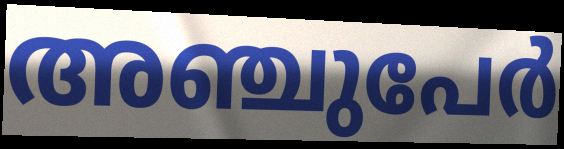
അഞ്ചുപേർ